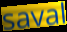
saval